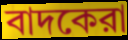
বাদকেরা